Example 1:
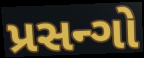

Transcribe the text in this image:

પ્રસન્ગો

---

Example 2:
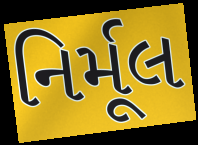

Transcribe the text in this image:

નિર્મૂલ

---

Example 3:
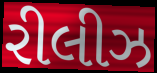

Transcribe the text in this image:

રીલીઝ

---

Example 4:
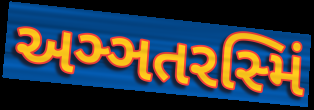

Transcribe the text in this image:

અઞ્ઞતરસ્મિં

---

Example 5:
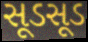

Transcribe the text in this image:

સૂડસૂડ